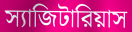
স্যাজিটারিয়াস